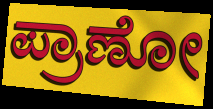
ಪ್ರಾಣೋ